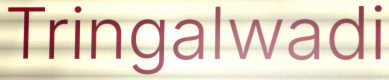
Tringalwadi